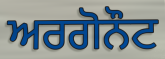
ਅਰਗੋਨੌਟ